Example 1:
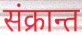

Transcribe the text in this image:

संक्रान्त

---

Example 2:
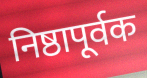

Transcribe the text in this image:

निष्ठापूर्वक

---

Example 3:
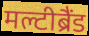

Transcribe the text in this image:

मल्टीब्रैंड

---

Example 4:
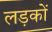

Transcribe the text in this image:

लड़कों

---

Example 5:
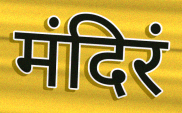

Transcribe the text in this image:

मंदिरं